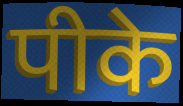
पीके